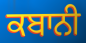
ਕਬਾਨੀ